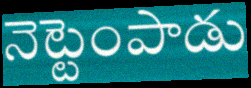
నెట్టెంపాడు